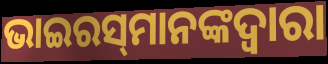
ଭାଇରସ୍‌ମାନଙ୍କଦ୍ୱାରା